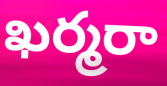
ఖర్మరా